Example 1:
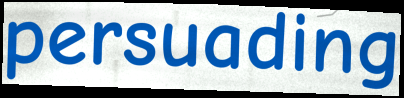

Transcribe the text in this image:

persuading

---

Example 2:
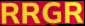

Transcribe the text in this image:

RRGR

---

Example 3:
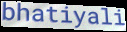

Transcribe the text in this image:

bhatiyali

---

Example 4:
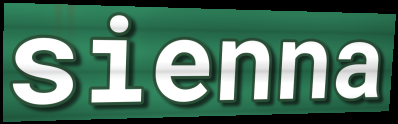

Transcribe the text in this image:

sienna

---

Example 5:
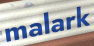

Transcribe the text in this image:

malark